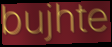
bujhte